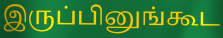
இருப்பினுங்கூட